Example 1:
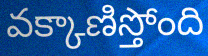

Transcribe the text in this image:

వక్కాణిస్తోంది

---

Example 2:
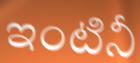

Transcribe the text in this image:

ఇంటినీ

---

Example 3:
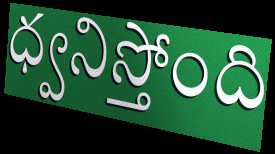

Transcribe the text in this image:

ధ్వనిస్తోంది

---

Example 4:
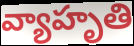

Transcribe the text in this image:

వ్యాహృతి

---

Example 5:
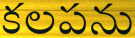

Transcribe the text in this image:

కలపను